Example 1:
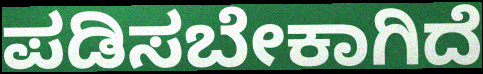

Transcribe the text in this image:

ಪಡಿಸಬೇಕಾಗಿದೆ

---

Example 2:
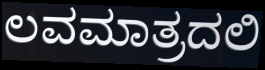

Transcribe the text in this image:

ಲವಮಾತ್ರದಲಿ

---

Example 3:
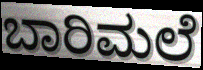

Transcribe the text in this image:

ಬಾರಿಮಲೆ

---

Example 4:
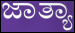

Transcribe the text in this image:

ಜಾತ್ಯಾ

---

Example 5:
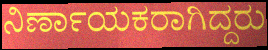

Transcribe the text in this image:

ನಿರ್ಣಾಯಕರಾಗಿದ್ದರು